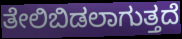
ತೇಲಿಬಿಡಲಾಗುತ್ತದೆ